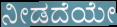
ನೀಡದೆಯೇ